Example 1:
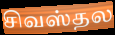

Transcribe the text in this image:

சிவஸ்தல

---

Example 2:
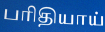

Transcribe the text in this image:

பரிதியாய்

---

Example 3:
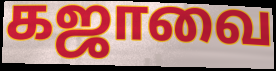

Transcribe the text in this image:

கஜாவை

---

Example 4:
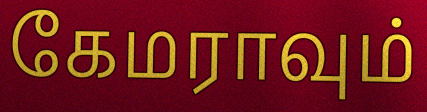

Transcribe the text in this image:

கேமராவும்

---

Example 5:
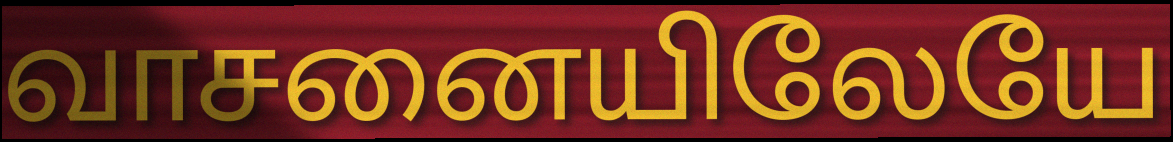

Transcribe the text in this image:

வாசனையிலேயே